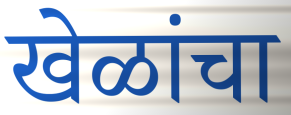
खेळांचा